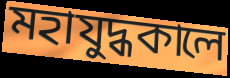
মহাযুদ্ধকালে